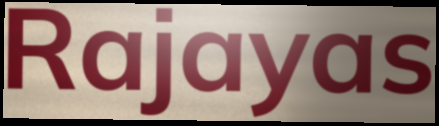
Rajayas